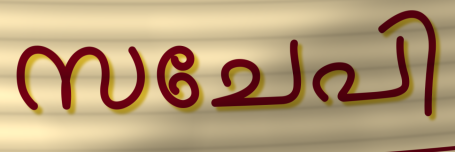
സചേപി